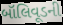
બૉલિવૂડની